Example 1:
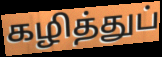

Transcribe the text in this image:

கழித்துப்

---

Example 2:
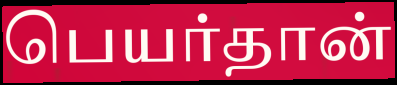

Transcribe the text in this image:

பெயர்தான்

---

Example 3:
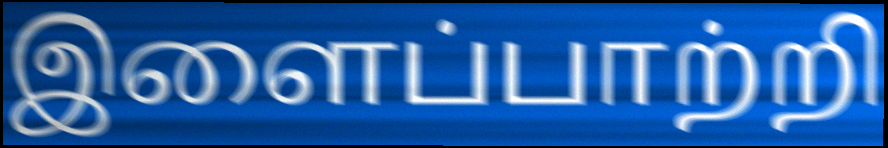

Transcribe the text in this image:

இளைப்பாற்றி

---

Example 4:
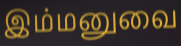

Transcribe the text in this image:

இம்மனுவை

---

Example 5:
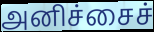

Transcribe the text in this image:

அனிச்சைச்